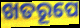
ଖତରୂପେ